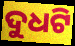
ଦୁଧଟି